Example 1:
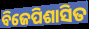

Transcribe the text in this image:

ବିଜେପିଶାସିତ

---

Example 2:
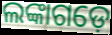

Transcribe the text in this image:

ଲଙ୍କାଗଡ଼େ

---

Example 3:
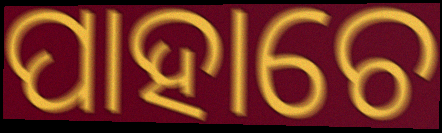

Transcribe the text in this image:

ପାହାଚେ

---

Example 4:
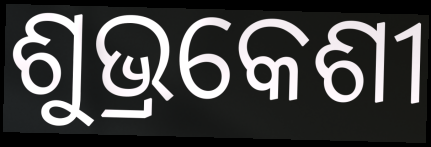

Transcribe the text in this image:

ଶୁଭ୍ରକେଶୀ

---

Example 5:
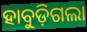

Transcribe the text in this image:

ହାବୁଡ଼ିଗଲା